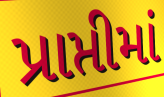
પ્રાપ્તીમાં